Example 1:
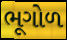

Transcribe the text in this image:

ભૂગોળ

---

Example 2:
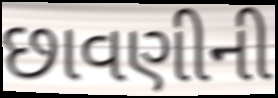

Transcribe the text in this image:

છાવણીની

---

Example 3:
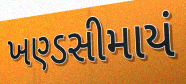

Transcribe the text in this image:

ખણ્ડસીમાયં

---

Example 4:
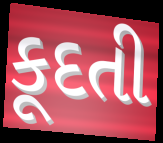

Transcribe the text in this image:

કૂદતી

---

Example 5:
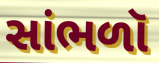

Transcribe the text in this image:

સાંભળૉ